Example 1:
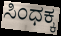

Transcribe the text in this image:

ಸಿಂಧಕ್ಕ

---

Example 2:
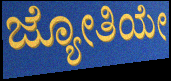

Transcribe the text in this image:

ಜ್ಯೋತಿಯೇ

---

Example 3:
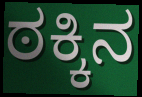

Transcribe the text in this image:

ಠಕ್ಕಿನ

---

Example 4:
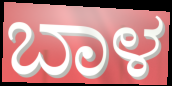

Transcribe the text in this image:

ಬಾಳ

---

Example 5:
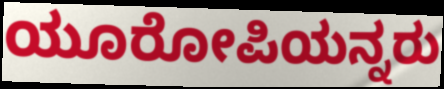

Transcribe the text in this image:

ಯೂರೋಪಿಯನ್ನರು